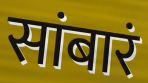
सांबारं